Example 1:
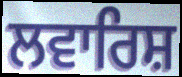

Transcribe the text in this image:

ਲਵਾਰਿਸ਼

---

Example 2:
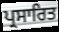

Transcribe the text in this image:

ਪ੍ਰਸਾਰਿਤ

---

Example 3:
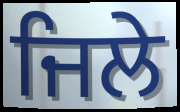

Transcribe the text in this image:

ਜਿਲੇ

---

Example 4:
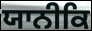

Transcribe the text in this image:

ਯਾਨੀਕਿ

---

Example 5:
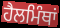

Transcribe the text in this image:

ਹੈਲਮਿੰਥਾਂ